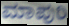
ಮಾಪುರಿ